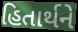
હિતાર્થને